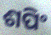
ଶପିଂ